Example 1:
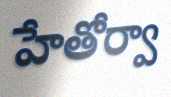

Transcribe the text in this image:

హేతోర్వా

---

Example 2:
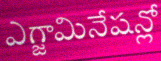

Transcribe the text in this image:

ఎగ్జామినేషన్లో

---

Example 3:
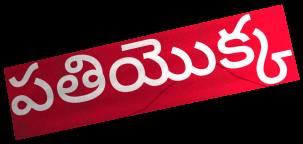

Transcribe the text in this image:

పతియొక్క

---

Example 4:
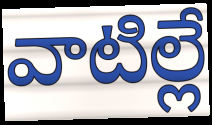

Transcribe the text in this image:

వాటిల్లే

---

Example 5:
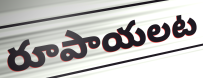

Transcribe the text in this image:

రూపాయలట